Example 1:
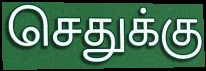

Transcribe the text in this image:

செதுக்கு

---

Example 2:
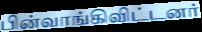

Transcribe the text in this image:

பின்வாங்கிவிட்டனர்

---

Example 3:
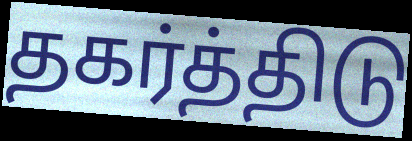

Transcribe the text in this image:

தகர்த்திடு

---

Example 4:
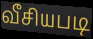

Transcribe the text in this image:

வீசியபடி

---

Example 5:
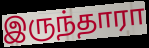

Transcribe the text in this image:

இருந்தாரா